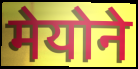
मेयोने